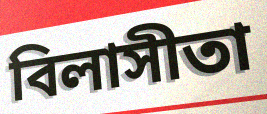
বিলাসীতা